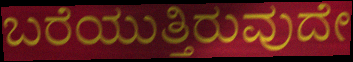
ಬರೆಯುತ್ತಿರುವುದೇ